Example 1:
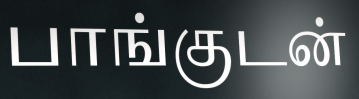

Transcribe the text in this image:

பாங்குடன்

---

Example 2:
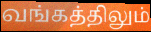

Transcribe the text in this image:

வங்கத்திலும்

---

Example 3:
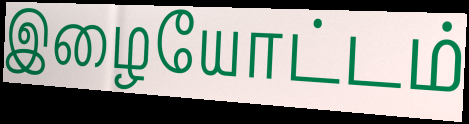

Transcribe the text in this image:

இழையோட்டம்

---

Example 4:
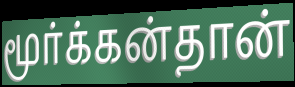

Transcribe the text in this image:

மூர்க்கன்தான்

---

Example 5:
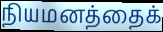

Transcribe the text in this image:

நியமனத்தைக்